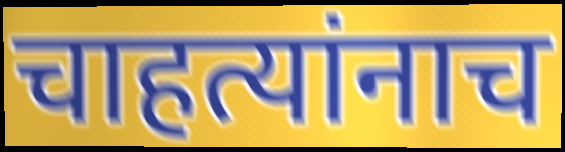
चाहत्यांनाच